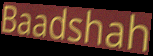
Baadshah